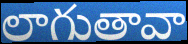
లాగుతావా